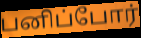
பனிப்போர்